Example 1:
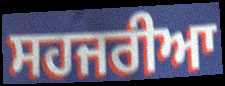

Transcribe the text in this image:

ਸਹਜਰੀਆ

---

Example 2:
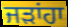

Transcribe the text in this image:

ਜੜਾਂਹਾ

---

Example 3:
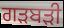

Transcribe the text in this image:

ਗੜਬੜੀ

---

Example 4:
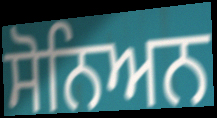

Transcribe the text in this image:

ਸੋਨਿਅਨ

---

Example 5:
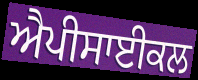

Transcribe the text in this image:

ਐਪੀਸਾਈਕਲ